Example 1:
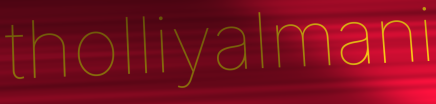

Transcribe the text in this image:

tholliyalmani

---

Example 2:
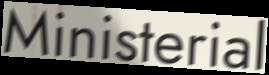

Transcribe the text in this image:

Ministerial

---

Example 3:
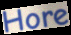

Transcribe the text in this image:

Hore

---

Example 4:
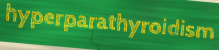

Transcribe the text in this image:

hyperparathyroidism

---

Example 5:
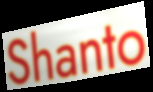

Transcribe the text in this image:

Shanto